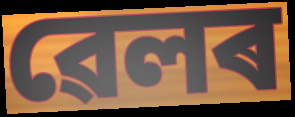
ৱেলৰ